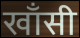
खाँसी